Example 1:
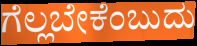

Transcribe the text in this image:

ಗೆಲ್ಲಬೇಕೆಂಬುದು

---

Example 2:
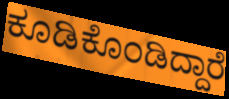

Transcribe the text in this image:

ಕೂಡಿಕೊಂಡಿದ್ದಾರೆ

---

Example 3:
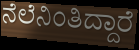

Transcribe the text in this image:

ನೆಲೆನಿಂತಿದ್ದಾರೆ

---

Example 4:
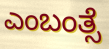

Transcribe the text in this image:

ಎಂಬಂತ್ಸೆ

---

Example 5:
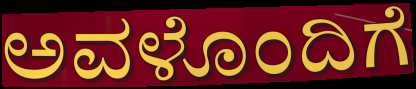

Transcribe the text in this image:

ಅವಳೊಂದಿಗೆ